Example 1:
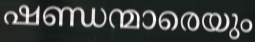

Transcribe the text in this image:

ഷണ്ഡന്മാരെയും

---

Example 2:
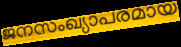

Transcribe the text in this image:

ജനസംഖ്യാപരമായ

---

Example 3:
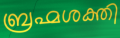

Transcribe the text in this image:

ബ്രഹ്മശക്തി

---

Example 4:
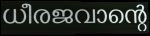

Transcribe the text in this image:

ധീരജവാന്റെ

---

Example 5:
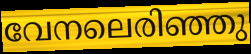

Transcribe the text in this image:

വേനലെരിഞ്ഞു